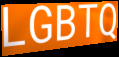
LGBTQ